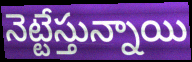
నెట్టేస్తున్నాయి